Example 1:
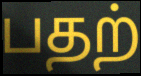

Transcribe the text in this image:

பதற்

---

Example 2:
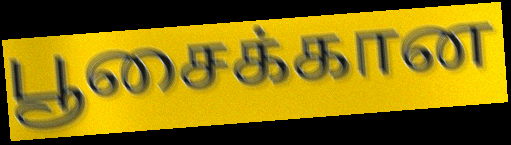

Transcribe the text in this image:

பூசைக்கான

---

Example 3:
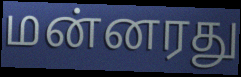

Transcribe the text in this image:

மன்னரது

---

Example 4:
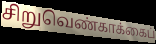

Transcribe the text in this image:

சிறுவெண்காக்கைப்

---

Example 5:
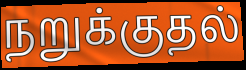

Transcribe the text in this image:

நறுக்குதல்